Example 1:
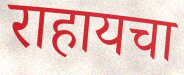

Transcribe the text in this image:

राहायचा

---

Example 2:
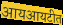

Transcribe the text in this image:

आयआयटीत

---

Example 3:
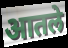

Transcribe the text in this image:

आतले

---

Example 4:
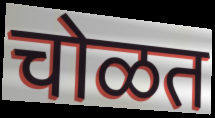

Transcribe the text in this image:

चोळत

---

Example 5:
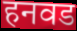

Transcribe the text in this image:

हनवड